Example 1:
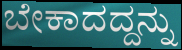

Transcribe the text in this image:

ಬೇಕಾದದ್ದನ್ನು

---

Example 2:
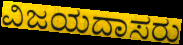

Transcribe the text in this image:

ವಿಜಯದಾಸರು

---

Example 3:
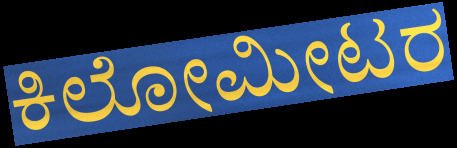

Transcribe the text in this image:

ಕಿಲೋಮೀಟರ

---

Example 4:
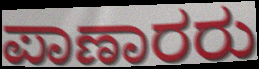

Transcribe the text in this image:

ಪಾಣಾರರು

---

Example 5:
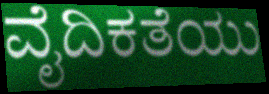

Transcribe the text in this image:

ವೈದಿಕತೆಯು